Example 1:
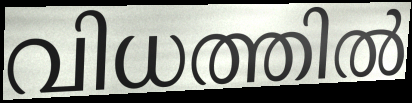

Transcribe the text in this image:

വിധത്തിൽ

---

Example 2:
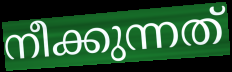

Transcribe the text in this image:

നീക്കുന്നത്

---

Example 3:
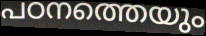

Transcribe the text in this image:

പഠനത്തെയും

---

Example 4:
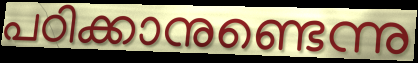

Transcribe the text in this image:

പഠിക്കാനുണ്ടെന്നു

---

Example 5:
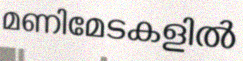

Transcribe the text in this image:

മണിമേടകളിൽ